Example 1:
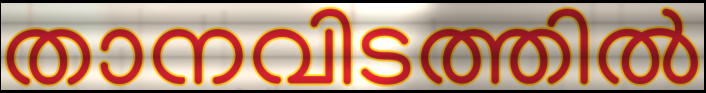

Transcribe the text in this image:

താനവിടത്തിൽ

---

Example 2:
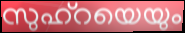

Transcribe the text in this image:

സുഹ്റയെയും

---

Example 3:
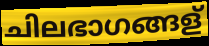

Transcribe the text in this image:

ചിലഭാഗങ്ങള്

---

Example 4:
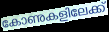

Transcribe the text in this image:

കോണുകളിലേക്ക്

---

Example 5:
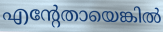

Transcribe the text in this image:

എന്റേതായെങ്കിൽ